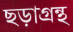
ছড়াগ্রন্থ